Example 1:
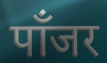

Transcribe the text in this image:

पाँजर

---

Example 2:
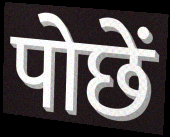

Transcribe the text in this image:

पोछें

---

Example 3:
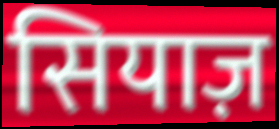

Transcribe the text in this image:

सियाज़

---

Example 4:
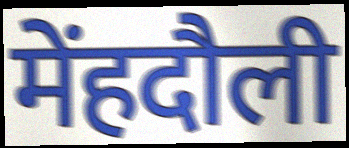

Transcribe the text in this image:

मेंहदौली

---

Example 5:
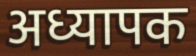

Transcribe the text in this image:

अध्यापक